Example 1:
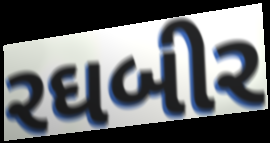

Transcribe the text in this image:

રઘબીર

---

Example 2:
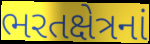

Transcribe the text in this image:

ભરતક્ષેત્રનાં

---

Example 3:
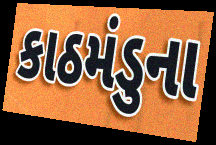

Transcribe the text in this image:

કાઠમંડુના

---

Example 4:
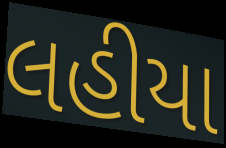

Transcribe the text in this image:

લહીયા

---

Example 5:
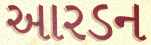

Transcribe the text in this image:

આરડન